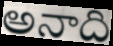
అనాది